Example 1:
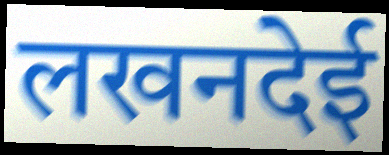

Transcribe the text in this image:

लखनदेई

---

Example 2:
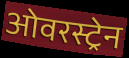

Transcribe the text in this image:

ओवरस्ट्रेन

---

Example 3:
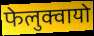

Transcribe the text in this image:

फेलुक्वायो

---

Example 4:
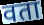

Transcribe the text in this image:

वता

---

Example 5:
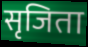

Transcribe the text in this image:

सृजिता